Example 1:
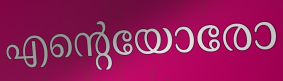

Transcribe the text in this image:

എന്റെയോരോ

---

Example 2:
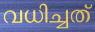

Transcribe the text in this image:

വധിച്ചത്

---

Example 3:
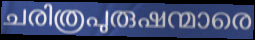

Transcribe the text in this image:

ചരിത്രപുരുഷന്മാരെ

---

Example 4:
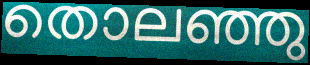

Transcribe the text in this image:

തൊലഞ്ഞു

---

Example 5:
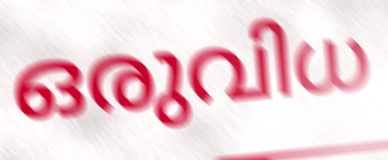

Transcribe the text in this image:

ഒരുവിധ